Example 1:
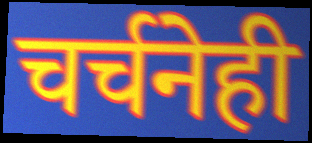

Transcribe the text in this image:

चर्चनेही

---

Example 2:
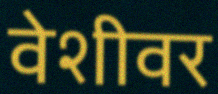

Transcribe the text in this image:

वेशीवर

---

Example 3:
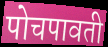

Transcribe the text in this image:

पोचपावती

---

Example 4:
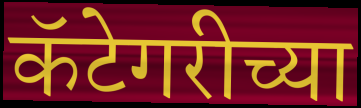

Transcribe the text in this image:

कॅटेगरीच्या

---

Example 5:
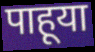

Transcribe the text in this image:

पाहूया